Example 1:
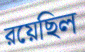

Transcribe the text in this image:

রয়েছিল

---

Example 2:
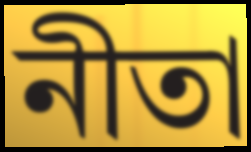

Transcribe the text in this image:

নীতা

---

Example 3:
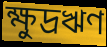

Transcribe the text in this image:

ক্ষুদ্রঋণ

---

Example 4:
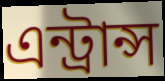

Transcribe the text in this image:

এন্ট্রান্স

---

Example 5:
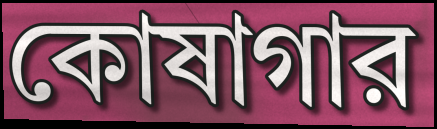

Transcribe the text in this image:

কোষাগার